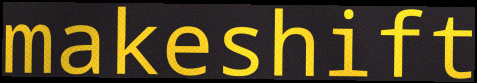
makeshift